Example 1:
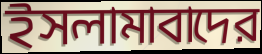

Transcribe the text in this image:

ইসলামাবাদের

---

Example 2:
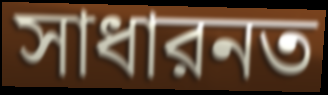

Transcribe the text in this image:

সাধারনত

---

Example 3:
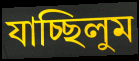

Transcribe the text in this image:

যাচ্ছিলুম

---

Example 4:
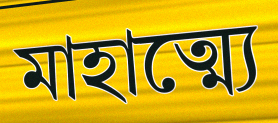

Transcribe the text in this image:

মাহাত্ম্যে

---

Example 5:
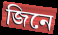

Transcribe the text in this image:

জিনে